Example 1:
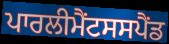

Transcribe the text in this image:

ਪਾਰਲੀਮੈਂਟਸਸਪੈਂਡ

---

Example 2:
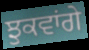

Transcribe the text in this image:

ਝੁਕਵਾਂਗੇ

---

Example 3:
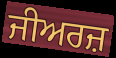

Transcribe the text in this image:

ਜੀਅਰਜ਼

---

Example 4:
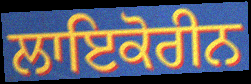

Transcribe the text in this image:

ਲਾਇਕੋਰੀਨ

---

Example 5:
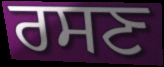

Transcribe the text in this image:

ਰਸਣ